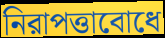
নিরাপত্তাবোধে